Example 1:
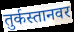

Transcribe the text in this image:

तुर्कस्तानवर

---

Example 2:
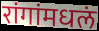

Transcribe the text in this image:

रांगांमधलं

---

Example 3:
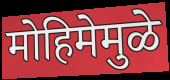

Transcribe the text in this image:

मोहिमेमुळे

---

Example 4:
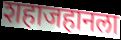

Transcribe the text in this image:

शहाजहानला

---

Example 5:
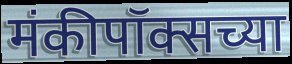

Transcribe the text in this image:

मंकीपॉक्सच्या